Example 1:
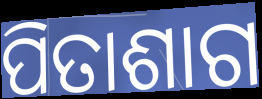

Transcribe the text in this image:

ପିତାଶାଗ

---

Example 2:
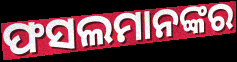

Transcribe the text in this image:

ଫସଲମାନଙ୍କର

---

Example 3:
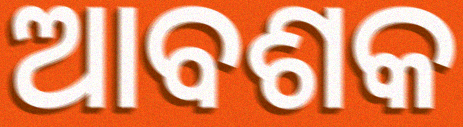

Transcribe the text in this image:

ଆବଶକ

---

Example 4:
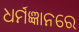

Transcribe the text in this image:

ଧର୍ମଜ୍ଞାନରେ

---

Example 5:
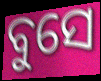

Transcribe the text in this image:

ବୁସେ